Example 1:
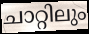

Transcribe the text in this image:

ചാറ്റിലും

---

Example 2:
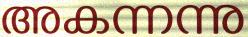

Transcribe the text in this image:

അകന്നന്നു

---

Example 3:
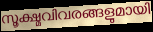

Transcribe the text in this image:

സൂക്ഷ്മവിവരങ്ങളുമായി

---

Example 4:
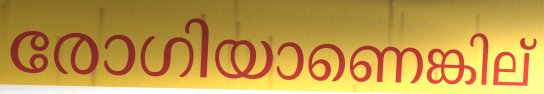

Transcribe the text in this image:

രോഗിയാണെങ്കില്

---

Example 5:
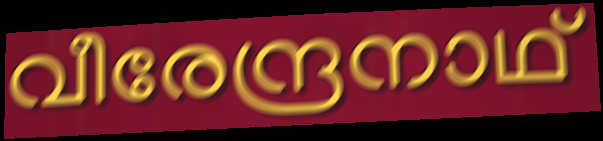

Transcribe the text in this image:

വീരേന്ദ്രനാഥ്